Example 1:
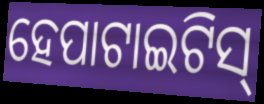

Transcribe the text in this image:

ହେପାଟାଇଟିସ୍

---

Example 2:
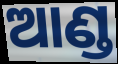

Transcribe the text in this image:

ଆଣ୍ଡ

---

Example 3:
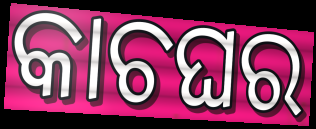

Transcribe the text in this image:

କାଚଘର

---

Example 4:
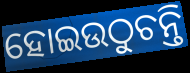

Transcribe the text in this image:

ହୋଇଉଠୁଚନ୍ତି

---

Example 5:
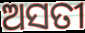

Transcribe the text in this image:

ଅସତୀ